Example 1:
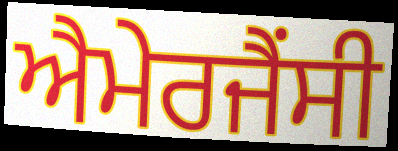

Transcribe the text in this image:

ਐਮੇਰਜੈਂਸੀ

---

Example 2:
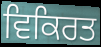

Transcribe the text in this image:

ਵਿਕਿਰਤ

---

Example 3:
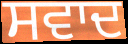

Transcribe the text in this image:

ਸਵਾਦ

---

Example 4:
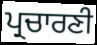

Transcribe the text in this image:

ਪ੍ਰਚਾਰਣੀ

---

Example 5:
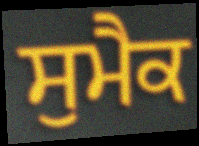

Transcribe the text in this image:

ਸੁਮੈਕ